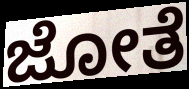
ಜೋತೆ